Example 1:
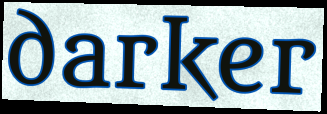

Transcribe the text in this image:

darker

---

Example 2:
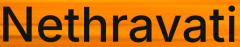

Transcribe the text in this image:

Nethravati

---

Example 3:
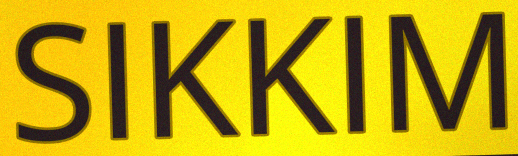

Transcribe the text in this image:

SIKKIM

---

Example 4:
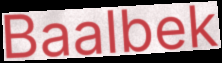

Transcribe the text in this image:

Baalbek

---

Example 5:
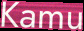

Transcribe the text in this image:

Kamu